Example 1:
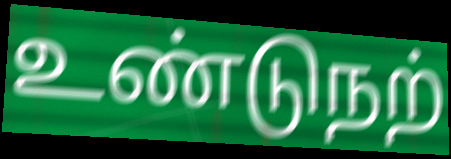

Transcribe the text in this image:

உண்டுநற்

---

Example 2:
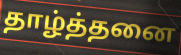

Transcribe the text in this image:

தாழ்த்தனை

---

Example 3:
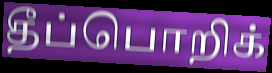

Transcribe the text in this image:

தீப்பொறிக்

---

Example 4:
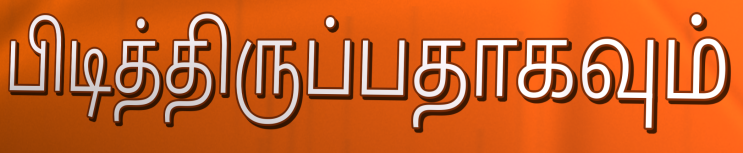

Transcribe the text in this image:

பிடித்திருப்பதாகவும்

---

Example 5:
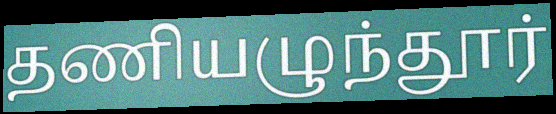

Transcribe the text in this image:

தணியழுந்தூர்